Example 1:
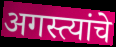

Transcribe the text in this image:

अगस्त्यांचे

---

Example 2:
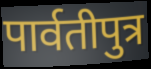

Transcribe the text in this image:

पार्वतीपुत्र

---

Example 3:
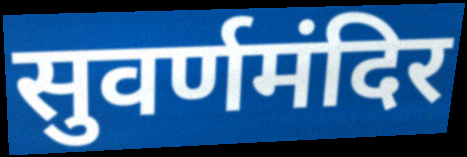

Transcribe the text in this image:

सुवर्णमंदिर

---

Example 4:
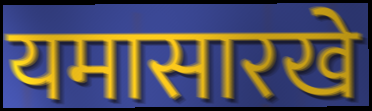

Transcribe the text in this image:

यमासारखे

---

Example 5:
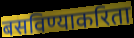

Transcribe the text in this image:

बसविण्याकरिता